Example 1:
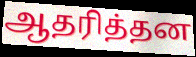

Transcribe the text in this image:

ஆதரித்தன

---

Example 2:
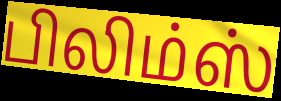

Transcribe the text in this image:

பிலிம்ஸ்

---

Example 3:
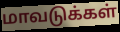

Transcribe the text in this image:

மாவடுக்கள்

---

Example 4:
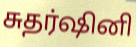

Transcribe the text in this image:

சுதர்ஷினி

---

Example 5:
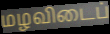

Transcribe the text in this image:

மழவிடைப்